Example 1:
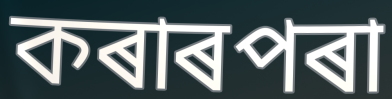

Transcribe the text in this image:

কৰাৰপৰা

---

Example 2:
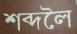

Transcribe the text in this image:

শব্দলৈ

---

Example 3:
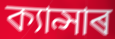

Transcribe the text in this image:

ক্যান্সাৰ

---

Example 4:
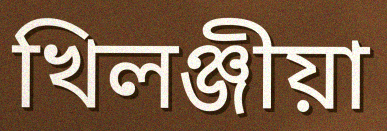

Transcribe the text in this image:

খিলঞ্জীয়া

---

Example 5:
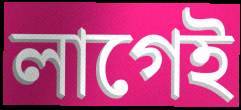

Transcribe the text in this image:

লাগেই